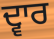
ਦ੍ਵਾਰ